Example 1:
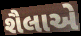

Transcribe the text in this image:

શૈલાએ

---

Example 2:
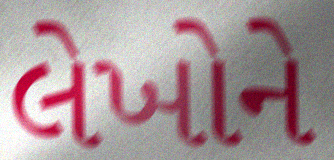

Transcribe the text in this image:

લેખોને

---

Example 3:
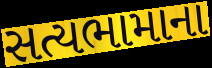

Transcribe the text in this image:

સત્યભામાના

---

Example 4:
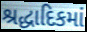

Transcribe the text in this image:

શ્રદ્ધાદિકમાં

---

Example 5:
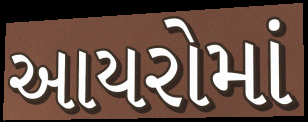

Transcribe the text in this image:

આયરોમાં